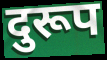
दुरूप